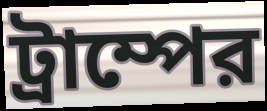
ট্রাম্পের